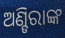
ଅଣ୍ଡିରାଙ୍କ